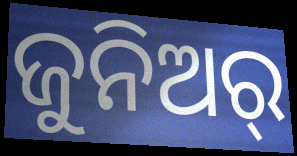
ଜୁନିଅର୍